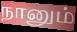
நானும்